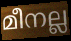
മീനല്ല